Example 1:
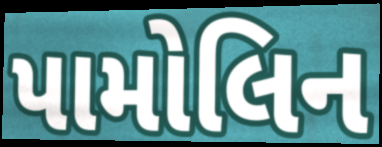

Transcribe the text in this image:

પામોલિન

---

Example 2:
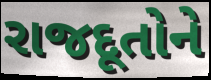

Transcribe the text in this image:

રાજદૂતોને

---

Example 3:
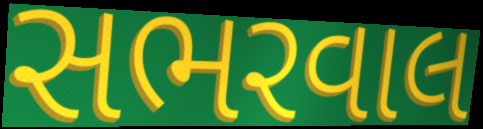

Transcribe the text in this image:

સભરવાલ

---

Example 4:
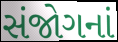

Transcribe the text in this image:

સંજોગનાં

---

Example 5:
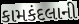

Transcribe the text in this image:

કામકંદલાની